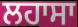
ਲਹਾਸਾ